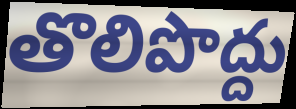
తొలిపొద్దు